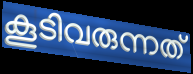
കൂടിവരുന്നത്